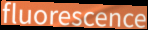
fluorescence